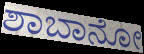
ಶಾಬಾನೋ